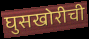
घुसखोरीची